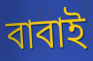
বাবাই